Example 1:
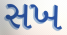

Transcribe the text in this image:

સખ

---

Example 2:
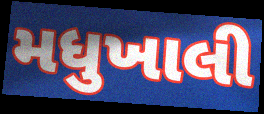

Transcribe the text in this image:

મધુખાલી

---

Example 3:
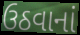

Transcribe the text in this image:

ઉઠવાનાં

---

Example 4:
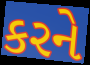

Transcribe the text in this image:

કરને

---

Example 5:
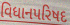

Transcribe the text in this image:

વિધાનપરિષદ